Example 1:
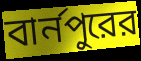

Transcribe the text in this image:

বার্নপুরের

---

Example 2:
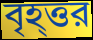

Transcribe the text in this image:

বৃহ্ত্তর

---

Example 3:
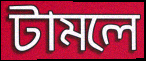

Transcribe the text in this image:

টামলে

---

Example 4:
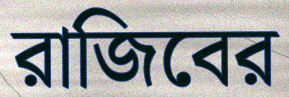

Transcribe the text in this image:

রাজিবের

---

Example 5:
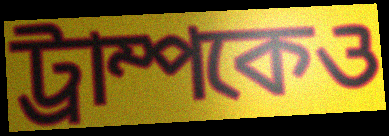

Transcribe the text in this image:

ট্রাম্পকেও